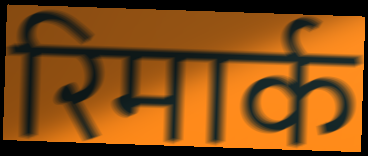
रिमार्क